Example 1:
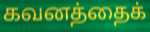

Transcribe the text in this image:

கவனத்தைக்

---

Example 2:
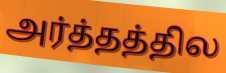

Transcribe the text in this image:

அர்த்தத்தில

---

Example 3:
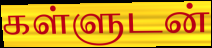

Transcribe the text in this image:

கள்ளுடன்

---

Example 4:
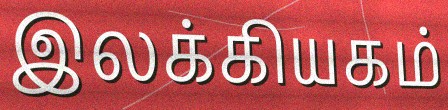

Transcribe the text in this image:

இலக்கியகம்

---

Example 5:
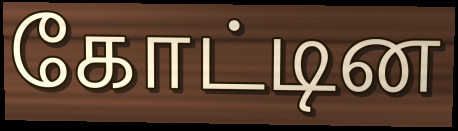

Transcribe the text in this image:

கோட்டின